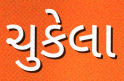
ચુકેલા